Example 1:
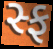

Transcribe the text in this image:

સ્ફ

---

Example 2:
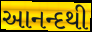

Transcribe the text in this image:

આનન્દથી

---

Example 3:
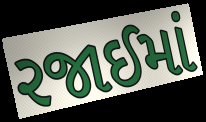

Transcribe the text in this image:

રજાઈમાં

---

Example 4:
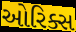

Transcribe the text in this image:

ઓરિક્સ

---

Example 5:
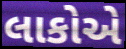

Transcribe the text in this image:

લાકોએ